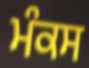
ਮੰਕਸ